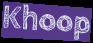
Khoop